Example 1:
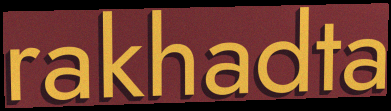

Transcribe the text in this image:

rakhadta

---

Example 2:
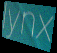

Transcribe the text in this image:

lynx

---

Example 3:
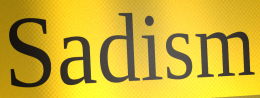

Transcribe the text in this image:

Sadism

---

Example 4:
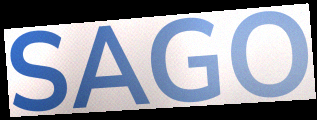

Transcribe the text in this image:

SAGO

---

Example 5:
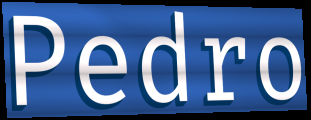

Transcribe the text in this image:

Pedro